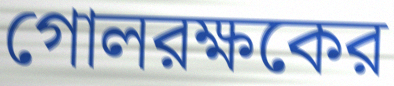
গোলরক্ষকের